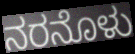
ನರನೊಳು